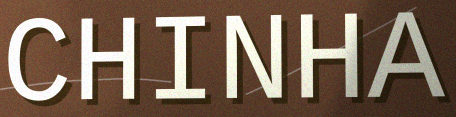
CHINHA